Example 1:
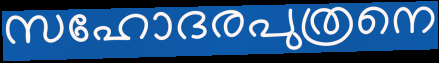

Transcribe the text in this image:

സഹോദരപുത്രനെ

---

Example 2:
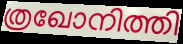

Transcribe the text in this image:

ത്രഖോനിത്തി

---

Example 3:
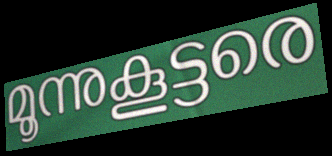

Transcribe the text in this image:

മൂന്നുകൂട്ടരെ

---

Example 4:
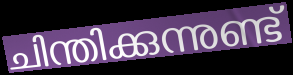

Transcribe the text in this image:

ചിന്തിക്കുന്നുണ്ട്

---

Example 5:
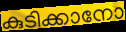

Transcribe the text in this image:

കുടിക്കാനോ